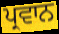
ਪ੍ਰਵਾਨ